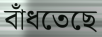
বাঁধতেছে